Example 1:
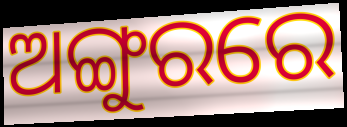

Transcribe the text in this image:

ଅଙ୍ଗୁରରେ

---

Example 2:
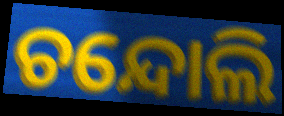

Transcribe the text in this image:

ଚନ୍ଦୋଲି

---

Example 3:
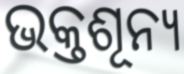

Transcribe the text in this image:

ଭକ୍ତଶୂନ୍ୟ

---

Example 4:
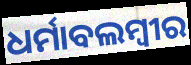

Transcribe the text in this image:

ଧର୍ମାବଲମ୍ବୀର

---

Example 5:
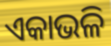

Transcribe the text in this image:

ଏକାଭଳି